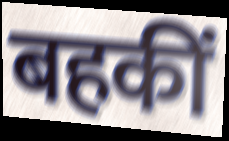
बहकीं